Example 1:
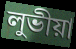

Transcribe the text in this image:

লুভীয়া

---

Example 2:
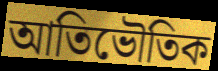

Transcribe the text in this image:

আতিভৌতিক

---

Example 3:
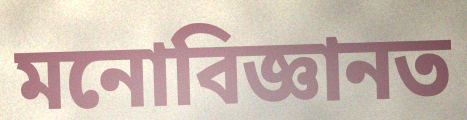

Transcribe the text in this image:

মনোবিজ্ঞানত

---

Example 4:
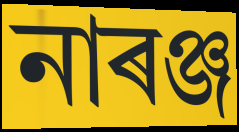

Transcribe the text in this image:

নাৰঞ্জ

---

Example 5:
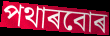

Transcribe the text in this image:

পথাৰবোৰ